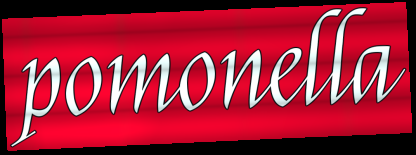
pomonella